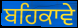
ਬਹਿਕਾਵੇ